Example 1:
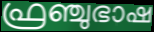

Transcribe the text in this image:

ഫ്രഞ്ചുഭാഷ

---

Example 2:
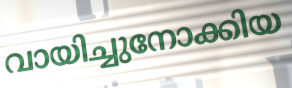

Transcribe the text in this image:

വായിച്ചുനോക്കിയ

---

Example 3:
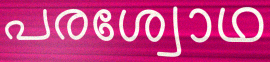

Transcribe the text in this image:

പരശ്വോഥ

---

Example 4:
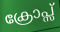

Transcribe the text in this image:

ക്രോപ്സ്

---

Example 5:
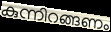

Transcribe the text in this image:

കുന്നിറങ്ങണം